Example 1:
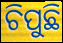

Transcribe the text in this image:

ଚିପୁଛି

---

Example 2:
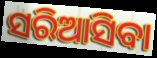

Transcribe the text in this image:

ସରିଆସିବା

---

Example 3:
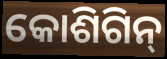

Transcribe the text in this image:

କୋଶିଗିନ୍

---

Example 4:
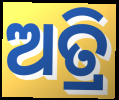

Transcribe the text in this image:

ଅତ୍ରି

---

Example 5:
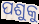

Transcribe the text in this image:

ପଶୁକୁ